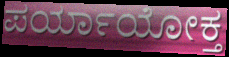
ಪರ್ಯಾಯೋಕ್ತ